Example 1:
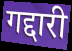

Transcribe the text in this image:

गद्दारी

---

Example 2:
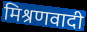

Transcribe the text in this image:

मिश्रणवादी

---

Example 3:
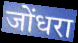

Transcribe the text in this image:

जोंधरा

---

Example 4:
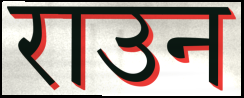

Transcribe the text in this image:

राउन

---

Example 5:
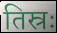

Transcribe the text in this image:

तिस्रः